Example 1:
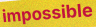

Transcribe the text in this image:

impossible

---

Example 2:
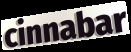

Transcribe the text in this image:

cinnabar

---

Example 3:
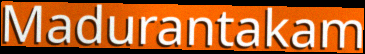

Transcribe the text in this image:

Madurantakam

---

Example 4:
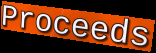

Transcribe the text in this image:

Proceeds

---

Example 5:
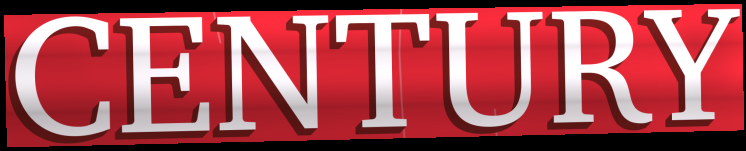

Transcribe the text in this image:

CENTURY